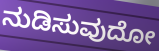
ನುಡಿಸುವುದೋ